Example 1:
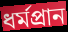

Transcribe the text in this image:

ধর্মপ্রান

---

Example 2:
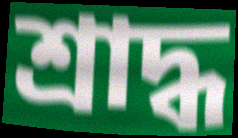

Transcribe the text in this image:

শ্রাদ্ধ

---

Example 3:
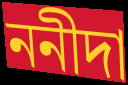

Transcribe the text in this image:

ননীদা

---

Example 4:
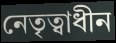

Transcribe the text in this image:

নেতৃত্বাধীন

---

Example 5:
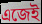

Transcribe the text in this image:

এজেই